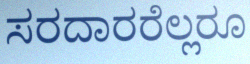
ಸರದಾರರೆಲ್ಲರೂ